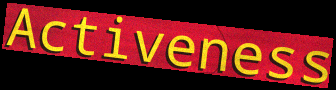
Activeness